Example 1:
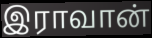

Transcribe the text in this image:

இராவான்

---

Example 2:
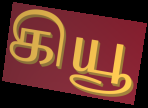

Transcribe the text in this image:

கியூ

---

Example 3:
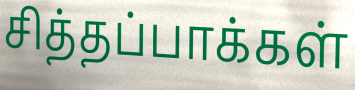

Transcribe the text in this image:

சித்தப்பாக்கள்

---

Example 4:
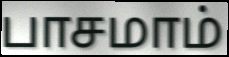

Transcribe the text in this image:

பாசமாம்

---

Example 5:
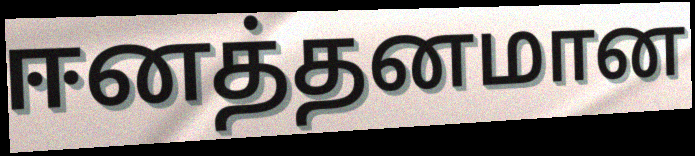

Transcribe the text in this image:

ஈனத்தனமான